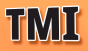
TMI